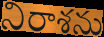
నిరాశను